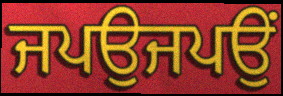
ਜਪਉਜਪਉਂ